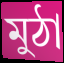
মুঠা